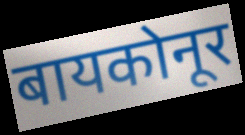
बायकोनूर